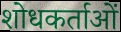
शोधकर्ताओं